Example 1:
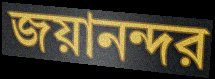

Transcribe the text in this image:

জয়ানন্দর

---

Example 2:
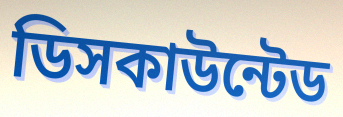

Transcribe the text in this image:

ডিসকাউন্টেড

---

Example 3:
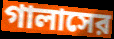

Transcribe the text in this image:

গালাসের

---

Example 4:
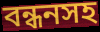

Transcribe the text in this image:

বন্ধনসহ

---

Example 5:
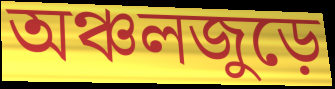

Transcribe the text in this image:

অঞ্চলজুড়ে